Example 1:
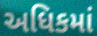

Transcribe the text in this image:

અધિકમાં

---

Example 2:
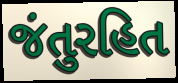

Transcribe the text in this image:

જંતુરહિત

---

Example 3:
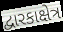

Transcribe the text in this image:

દ્વારકાક્ષેત્ર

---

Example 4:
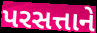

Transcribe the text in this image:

પરસત્તાને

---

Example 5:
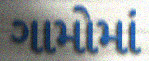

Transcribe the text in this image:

ગામોમાં